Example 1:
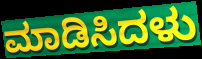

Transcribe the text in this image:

ಮಾಡಿಸಿದಳು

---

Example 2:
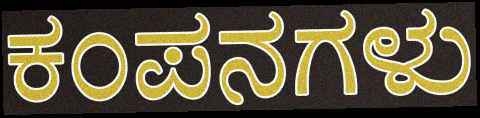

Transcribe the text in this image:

ಕಂಪನಗಳು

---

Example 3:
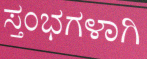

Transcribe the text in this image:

ಸ್ತಂಭಗಳಾಗಿ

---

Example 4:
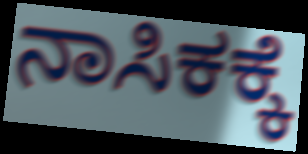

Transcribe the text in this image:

ನಾಸಿಕಕ್ಕೆ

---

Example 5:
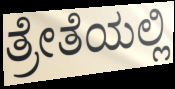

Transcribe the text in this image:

ತ್ರೇತೆಯಲ್ಲಿ